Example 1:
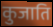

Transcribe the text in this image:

कुजाति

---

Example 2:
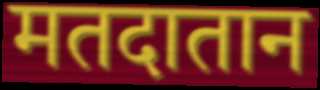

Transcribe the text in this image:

मतदातान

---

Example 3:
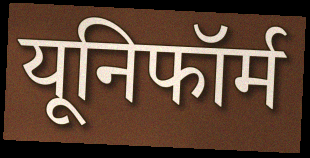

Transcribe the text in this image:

यूनिफॉर्म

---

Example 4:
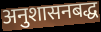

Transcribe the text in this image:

अनुशासनबद्ध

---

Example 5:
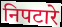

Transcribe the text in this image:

निपटारे